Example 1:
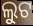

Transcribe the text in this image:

ଲୁଟ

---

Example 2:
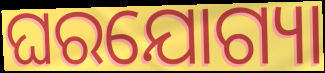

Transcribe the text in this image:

ଘରଯୋଗ୍ୟା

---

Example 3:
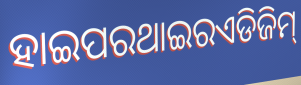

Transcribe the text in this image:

ହାଇପରଥାଇରଏଡିଜିମ୍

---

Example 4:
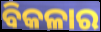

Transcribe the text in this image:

ବିକଳାର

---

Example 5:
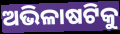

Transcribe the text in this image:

ଅଭିଳାଷଟିକୁ